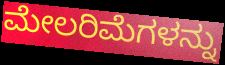
ಮೇಲರಿಮೆಗಳನ್ನು